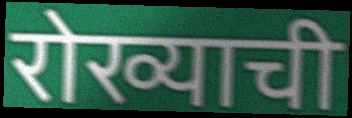
रोख्याची